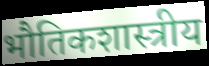
भौतिकशास्त्रीय